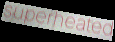
superheated